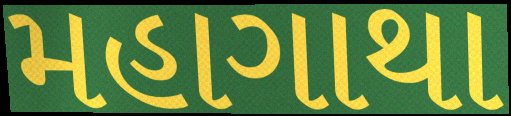
મહાગાથા